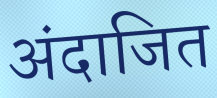
अंदाजित